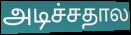
அடிச்சதால